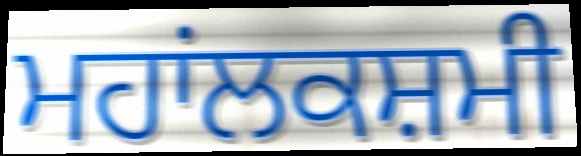
ਮਹਾਂਲਕਸ਼ਮੀ